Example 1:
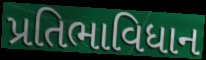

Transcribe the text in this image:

પ્રતિભાવિધાન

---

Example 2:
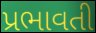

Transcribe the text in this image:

પ્રભાવતી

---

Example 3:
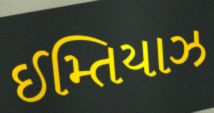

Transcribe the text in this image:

ઈમ્તિયાઝ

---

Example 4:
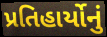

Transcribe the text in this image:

પ્રતિહાર્યોનું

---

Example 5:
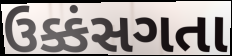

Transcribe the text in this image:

ઉક્કંસગતા